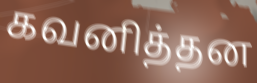
கவனித்தன